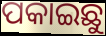
ପକାଇଛୁ